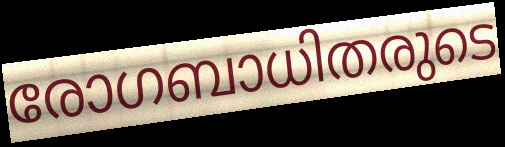
രോഗബാധിതരുടെ